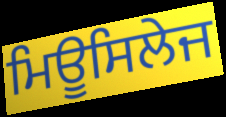
ਮਿਊਸਿਲੇਜ